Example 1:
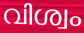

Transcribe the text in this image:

വിശ്വം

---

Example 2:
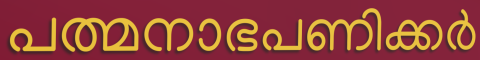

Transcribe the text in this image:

പത്മനാഭപണിക്കർ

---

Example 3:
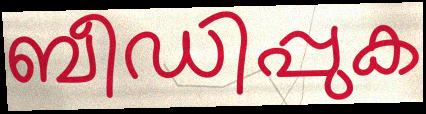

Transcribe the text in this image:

ബീഡിപ്പുക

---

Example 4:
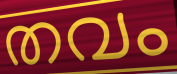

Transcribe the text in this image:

തവം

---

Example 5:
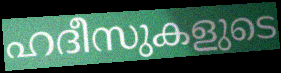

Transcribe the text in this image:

ഹദീസുകളുടെ